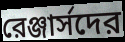
রেঞ্জার্সদের